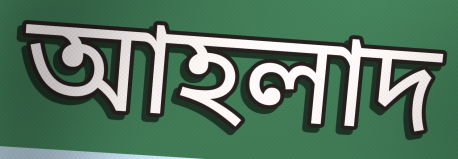
আহলাদ